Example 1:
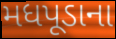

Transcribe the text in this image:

મધપૂડાના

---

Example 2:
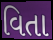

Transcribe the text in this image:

વિતા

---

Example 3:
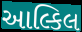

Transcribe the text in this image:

આલ્કિલ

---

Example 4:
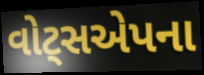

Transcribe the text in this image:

વોટ્સએપના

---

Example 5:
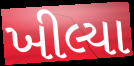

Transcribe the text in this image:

ખીલ્યા